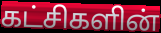
கட்சிகளின்